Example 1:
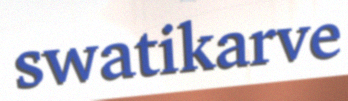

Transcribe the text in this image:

swatikarve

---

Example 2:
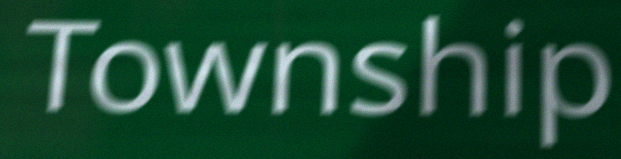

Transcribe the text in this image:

Township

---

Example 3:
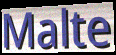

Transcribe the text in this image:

Malte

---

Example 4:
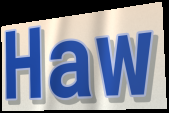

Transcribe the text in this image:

Haw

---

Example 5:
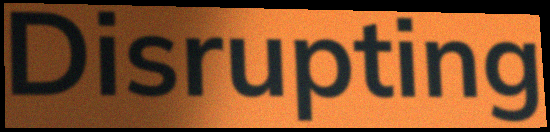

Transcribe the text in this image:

Disrupting